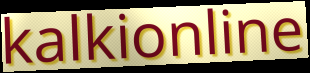
kalkionline